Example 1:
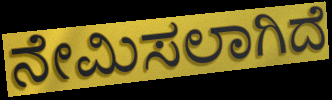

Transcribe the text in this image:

ನೇಮಿಸಲಾಗಿದೆ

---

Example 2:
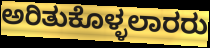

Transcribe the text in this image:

ಅರಿತುಕೊಳ್ಳಲಾರರು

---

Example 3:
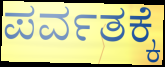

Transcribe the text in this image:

ಪರ್ವತಕ್ಕೆ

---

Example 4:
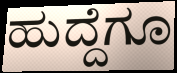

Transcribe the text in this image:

ಹುದ್ದೆಗೂ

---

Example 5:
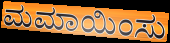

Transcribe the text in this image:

ಮಮಾಯಿಂಸು